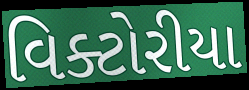
વિક્ટોરીયા